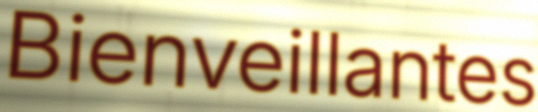
Bienveillantes